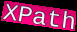
XPath